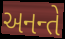
અનન્તે